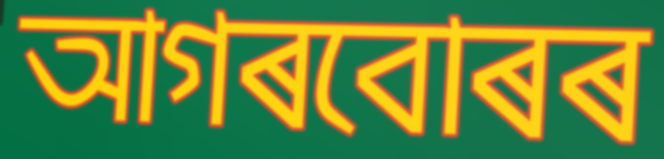
আগৰবোৰৰ